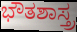
ಭೌತಶಾಸ್ತ್ರ